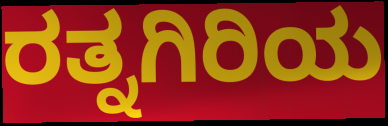
ರತ್ನಗಿರಿಯ